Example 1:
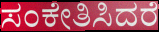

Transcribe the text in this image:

ಸಂಕೇತಿಸಿದರೆ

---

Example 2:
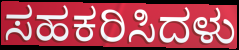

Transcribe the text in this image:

ಸಹಕರಿಸಿದಳು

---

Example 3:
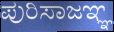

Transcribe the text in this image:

ಪುರಿಸಾಜಞ್ಞ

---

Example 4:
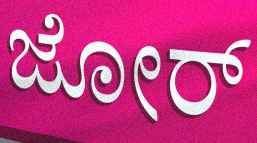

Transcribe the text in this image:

ಜೋರ್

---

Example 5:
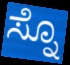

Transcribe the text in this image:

ಸ್ನೊ